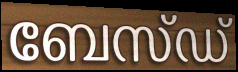
ബേസ്ഡ്